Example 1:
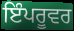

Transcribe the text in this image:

ਇੰਪਰੂਵਰ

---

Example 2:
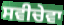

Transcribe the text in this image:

ਸਵੀਚੇਵਾ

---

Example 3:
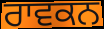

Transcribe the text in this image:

ਰਾਵਕਨ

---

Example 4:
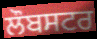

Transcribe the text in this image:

ਲੌਬਸਟਰ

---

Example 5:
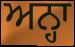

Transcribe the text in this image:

ਅਨ੍ਹਾ